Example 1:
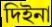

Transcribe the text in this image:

দিইনা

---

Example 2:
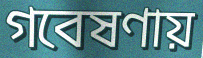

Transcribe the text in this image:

গবেষণায়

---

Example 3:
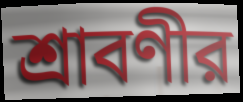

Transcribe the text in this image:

শ্রাবণীর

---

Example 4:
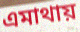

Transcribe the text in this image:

এমাথায়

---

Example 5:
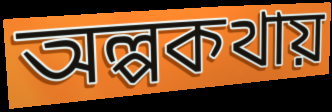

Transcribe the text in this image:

অল্পকথায়